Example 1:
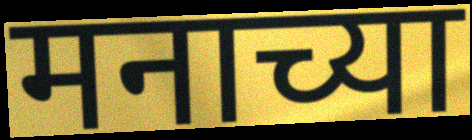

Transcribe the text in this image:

मनाच्या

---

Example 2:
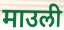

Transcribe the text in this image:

माउली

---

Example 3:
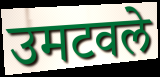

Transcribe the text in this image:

उमटवले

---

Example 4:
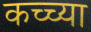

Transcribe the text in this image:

कच्च्या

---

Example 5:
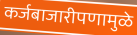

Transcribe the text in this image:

कर्जबाजारीपणामुळे